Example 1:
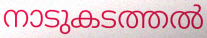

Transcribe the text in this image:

നാടുകടത്തൽ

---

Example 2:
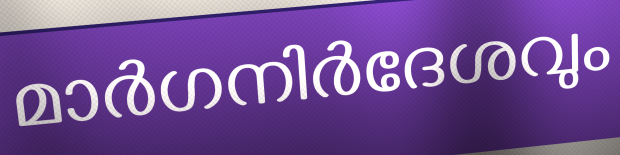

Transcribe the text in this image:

മാർഗനിർദേശവും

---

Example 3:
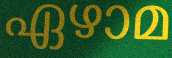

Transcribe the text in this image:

ഏഴാമ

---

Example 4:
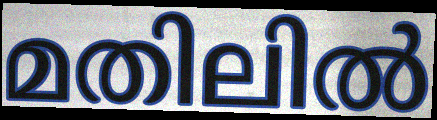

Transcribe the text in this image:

മതിലിൽ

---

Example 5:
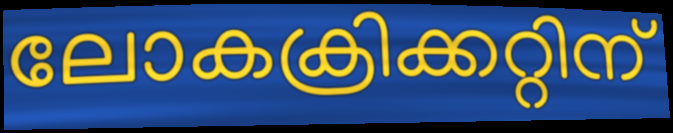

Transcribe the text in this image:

ലോകക്രിക്കറ്റിന്